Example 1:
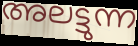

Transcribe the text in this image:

അലട്ടുന്ന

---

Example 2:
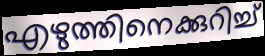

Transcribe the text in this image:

എഴുത്തിനെക്കുറിച്ച്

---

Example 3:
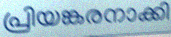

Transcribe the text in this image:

പ്രിയങ്കരനാക്കി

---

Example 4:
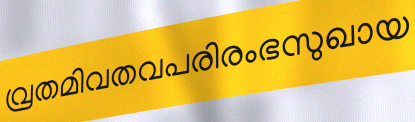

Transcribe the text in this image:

വ്രതമിവതവപരിരംഭസുഖായ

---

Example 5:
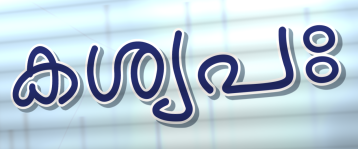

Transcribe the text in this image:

കശ്യപഃ